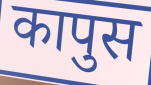
कापुस